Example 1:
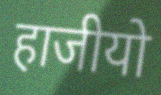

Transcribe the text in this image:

हाजीयो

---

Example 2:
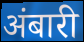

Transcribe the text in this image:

अंबारी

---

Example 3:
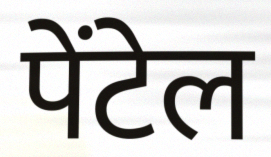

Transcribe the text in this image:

पेंटेल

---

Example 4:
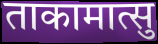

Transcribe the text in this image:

ताकामात्सु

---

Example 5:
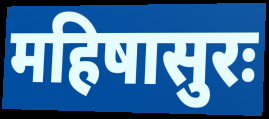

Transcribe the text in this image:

महिषासुरः